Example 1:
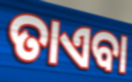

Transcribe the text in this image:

ତାଏବା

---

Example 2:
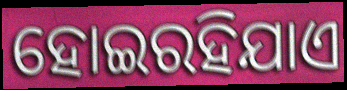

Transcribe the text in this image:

ହୋଇରହିଯାଏ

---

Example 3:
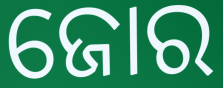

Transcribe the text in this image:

ଜୋର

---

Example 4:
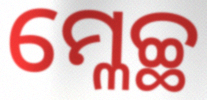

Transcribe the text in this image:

ମ୍ଳେଚ୍ଛ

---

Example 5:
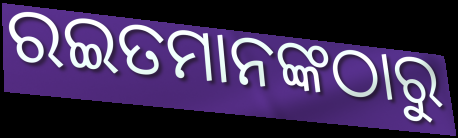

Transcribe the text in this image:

ରଇତମାନଙ୍କଠାରୁ